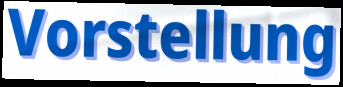
Vorstellung